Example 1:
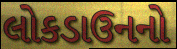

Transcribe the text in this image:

લોકડાઉનનો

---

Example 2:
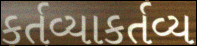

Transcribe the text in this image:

કર્તવ્યાકર્તવ્ય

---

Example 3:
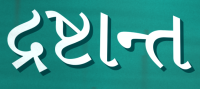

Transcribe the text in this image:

દ્રષ્ટાન્ત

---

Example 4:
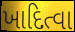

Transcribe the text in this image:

ખાદિત્વા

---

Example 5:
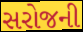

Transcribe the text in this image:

સરોજની